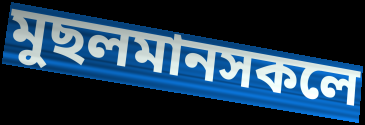
মুছলমানসকলে